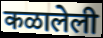
कळालेली